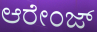
ಆರೇಂಜ್